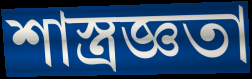
শাস্ত্রজ্ঞতা